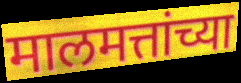
मालमत्तांच्या